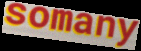
somany